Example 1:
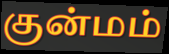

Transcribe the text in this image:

குன்மம்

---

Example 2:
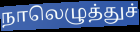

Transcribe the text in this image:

நாலெழுத்துச்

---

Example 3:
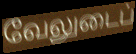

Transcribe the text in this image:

வேலுடைப்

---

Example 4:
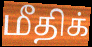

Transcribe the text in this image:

மீதிக்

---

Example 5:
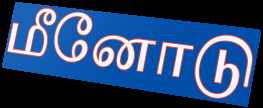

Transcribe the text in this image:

மீனோடு